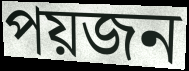
পয়জন